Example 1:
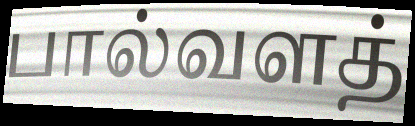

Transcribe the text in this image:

பால்வளத்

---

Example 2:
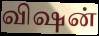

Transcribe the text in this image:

விஷன்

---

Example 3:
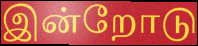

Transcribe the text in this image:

இன்றோடு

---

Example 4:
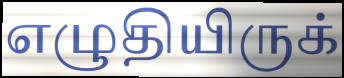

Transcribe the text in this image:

எழுதியிருக்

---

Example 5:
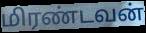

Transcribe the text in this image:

மிரண்டவன்